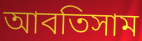
আবতিসাম